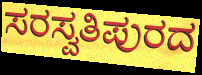
ಸರಸ್ವತಿಪುರದ